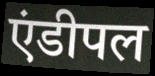
एंडीपल